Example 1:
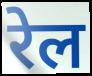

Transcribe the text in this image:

रेल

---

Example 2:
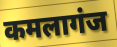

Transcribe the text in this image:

कमलागंज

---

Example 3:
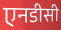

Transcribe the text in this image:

एनडीसी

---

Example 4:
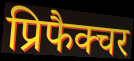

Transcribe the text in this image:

प्रिफैक्चर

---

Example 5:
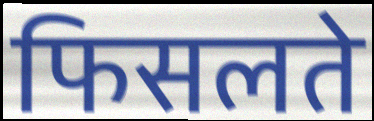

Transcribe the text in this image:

फिसलते